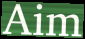
Aim